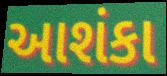
આશંકા